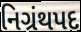
નિગ્રંથપદ